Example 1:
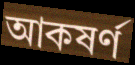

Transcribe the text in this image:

আকষৰ্ণ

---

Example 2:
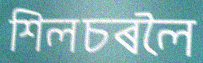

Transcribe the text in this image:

শিলচৰলৈ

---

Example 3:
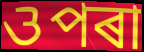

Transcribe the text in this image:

ওপৰা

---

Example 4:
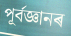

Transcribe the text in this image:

পূৰ্বজ্ঞানৰ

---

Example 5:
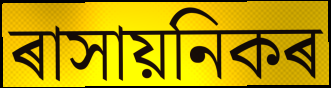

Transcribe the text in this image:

ৰাসায়নিকৰ